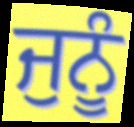
ਜੁਨੂੰ